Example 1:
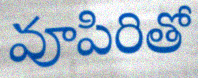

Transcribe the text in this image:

వూపిరితో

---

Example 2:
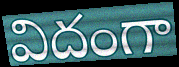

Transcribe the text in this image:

విదంగా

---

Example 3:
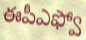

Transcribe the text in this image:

ఈపీఎఫ్వో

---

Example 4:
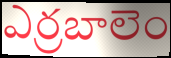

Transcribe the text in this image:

ఎర్రబాలెం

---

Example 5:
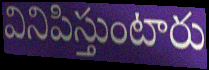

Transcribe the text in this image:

వినిపిస్తుంటారు